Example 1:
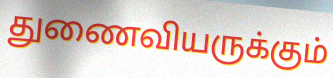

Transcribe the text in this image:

துணைவியருக்கும்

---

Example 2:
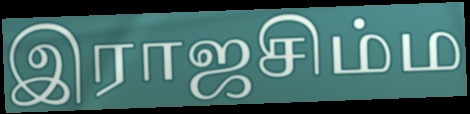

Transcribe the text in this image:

இராஜசிம்ம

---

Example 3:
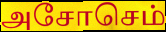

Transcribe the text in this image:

அசோசெம்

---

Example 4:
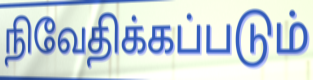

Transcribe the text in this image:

நிவேதிக்கப்படும்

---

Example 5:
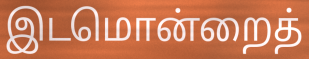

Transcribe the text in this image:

இடமொன்றைத்